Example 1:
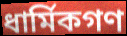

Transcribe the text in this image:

ধার্মিকগণ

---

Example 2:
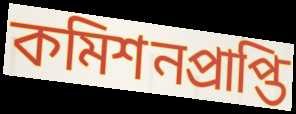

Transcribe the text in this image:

কমিশনপ্রাপ্তি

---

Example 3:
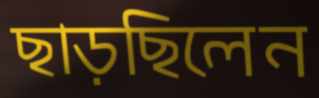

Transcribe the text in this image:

ছাড়ছিলেন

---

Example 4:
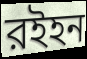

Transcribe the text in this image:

রইহন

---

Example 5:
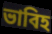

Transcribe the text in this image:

ভাবিহ